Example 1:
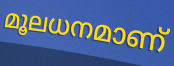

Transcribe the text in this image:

മൂലധനമാണ്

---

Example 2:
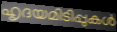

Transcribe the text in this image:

ഹൃദയമിടിപ്പുകൾ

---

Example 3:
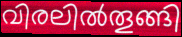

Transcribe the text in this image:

വിരലിൽതൂങ്ങി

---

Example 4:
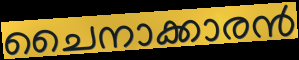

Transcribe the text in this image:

ചൈനാക്കാരൻ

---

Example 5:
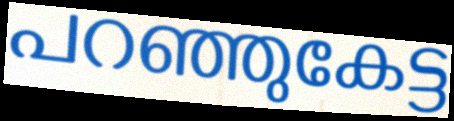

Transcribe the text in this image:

പറഞ്ഞുകേട്ട